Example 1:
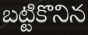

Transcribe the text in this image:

బట్టికొనిన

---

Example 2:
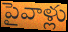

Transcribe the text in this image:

పైవాళ్లు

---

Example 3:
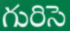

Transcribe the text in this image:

గురిసె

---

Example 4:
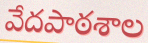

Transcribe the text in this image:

వేదపాఠశాల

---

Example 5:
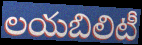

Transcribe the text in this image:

లయబిలిటీ